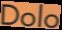
Dolo